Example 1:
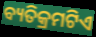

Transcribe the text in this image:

ବ୍ୟତିକ୍ରମଟିଏ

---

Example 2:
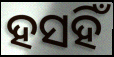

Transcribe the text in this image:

ହସହିଁ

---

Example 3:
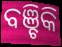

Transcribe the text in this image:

ବଞ୍ଚିକି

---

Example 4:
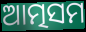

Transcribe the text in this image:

ଆତ୍ମସମ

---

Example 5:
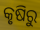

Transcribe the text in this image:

କୃଷିରୁ